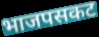
भाजपसकट